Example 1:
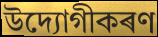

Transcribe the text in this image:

উদ্যোগীকৰণ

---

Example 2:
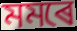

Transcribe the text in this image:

মমৰে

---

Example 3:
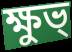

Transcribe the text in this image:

ক্ষুভ্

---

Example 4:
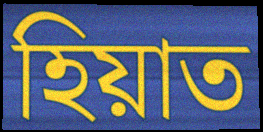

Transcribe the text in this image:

হিয়াত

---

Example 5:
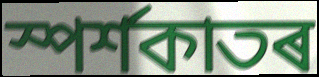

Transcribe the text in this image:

স্পৰ্শকাতৰ